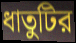
ধাতুটির